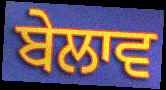
ਬੇਲਾਵ